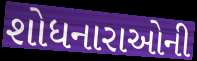
શોધનારાઓની